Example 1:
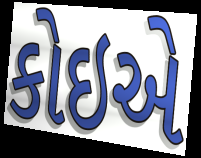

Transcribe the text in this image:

કોઇએ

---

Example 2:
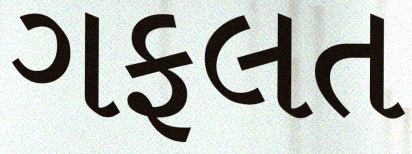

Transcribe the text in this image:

ગફલત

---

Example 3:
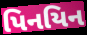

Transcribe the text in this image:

પિનયિન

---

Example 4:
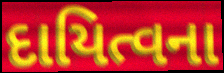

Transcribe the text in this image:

દાયિત્વના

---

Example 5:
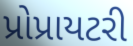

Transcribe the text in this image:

પ્રોપ્રાયટરી